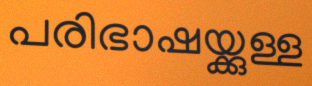
പരിഭാഷയ്ക്കുള്ള